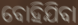
ବୋହିଯିବା